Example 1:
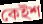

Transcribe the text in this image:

কেইশ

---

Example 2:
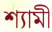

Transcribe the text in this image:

শ্যামী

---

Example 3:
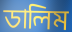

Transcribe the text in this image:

ডালিম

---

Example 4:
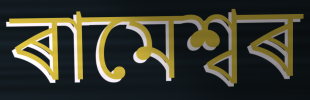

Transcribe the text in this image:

ৰামেশ্বৰ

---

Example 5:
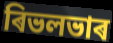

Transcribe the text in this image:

ৰিভলভাৰ